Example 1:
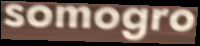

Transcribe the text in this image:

somogro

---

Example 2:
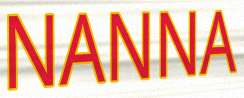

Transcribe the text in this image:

NANNA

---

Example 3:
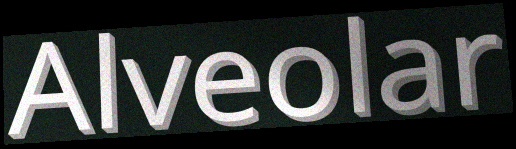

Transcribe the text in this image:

Alveolar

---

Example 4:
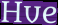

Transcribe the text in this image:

Hue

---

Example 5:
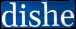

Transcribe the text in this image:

dishe